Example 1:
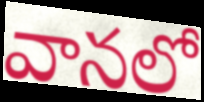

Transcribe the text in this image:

వానలో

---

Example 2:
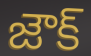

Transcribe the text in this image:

జౌక్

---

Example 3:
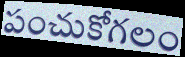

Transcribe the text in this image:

పంచుకోగలం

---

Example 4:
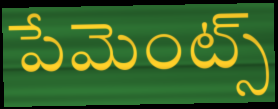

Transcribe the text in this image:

పేమెంట్స్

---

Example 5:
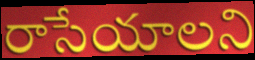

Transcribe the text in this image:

రాసేయాలని